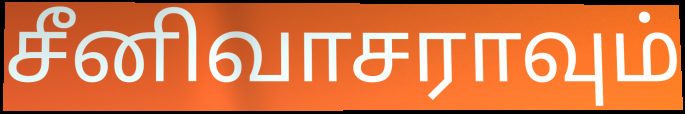
சீனிவாசராவும்